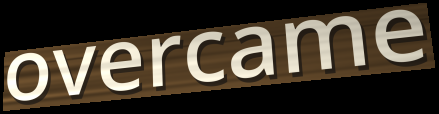
overcame